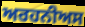
ਅਰਹਨੀਅਸ